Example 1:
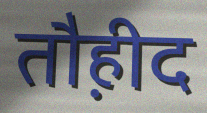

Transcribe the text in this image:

तौह़ीद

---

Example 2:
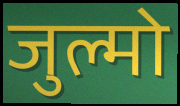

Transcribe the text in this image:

जुल्मो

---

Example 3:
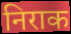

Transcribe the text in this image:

निराक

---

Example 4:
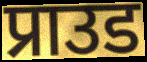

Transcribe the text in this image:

प्राउड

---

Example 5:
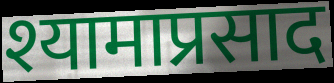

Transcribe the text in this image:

श्यामाप्रसाद